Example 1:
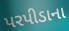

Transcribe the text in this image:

પરપીડાના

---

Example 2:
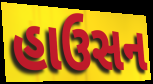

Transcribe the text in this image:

હાઉસન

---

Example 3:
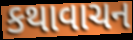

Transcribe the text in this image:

કથાવાચન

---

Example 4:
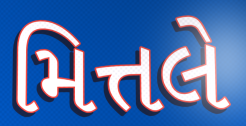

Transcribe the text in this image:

મિત્તલે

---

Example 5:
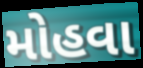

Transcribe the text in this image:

મોહવા